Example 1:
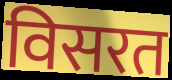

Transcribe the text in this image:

विसरत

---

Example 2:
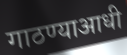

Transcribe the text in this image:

गाठण्याआधी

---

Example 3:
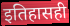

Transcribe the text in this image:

इतिहासही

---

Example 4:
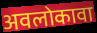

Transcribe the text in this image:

अवलोकावा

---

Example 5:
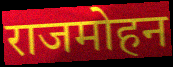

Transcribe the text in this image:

राजमोहन